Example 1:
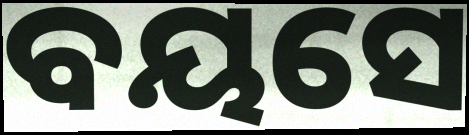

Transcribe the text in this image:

ବୟସେ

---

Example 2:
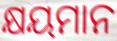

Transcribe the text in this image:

କ୍ଷୟମାନ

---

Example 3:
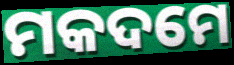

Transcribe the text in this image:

ମକଦମେ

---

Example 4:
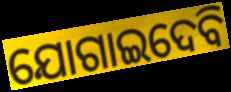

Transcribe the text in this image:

ଯୋଗାଇଦେବି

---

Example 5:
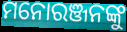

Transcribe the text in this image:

ମନୋରଞ୍ଜନଙ୍କୁ